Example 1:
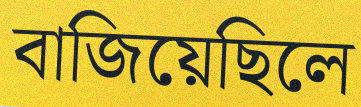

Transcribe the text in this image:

বাজিয়েছিলে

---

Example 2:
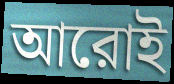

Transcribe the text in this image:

আরোই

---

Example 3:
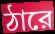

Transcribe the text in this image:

ঠারে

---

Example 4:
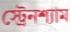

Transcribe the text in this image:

স্ট্রেনশ্যাম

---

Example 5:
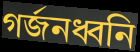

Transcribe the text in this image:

গর্জনধ্বনি